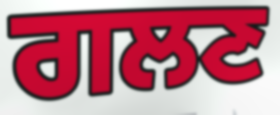
ਗਲਣ